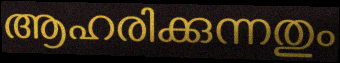
ആഹരിക്കുന്നതും